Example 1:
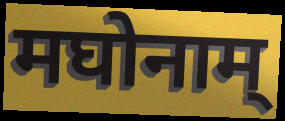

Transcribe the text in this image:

मघोनाम्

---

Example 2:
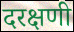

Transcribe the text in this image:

दरक्षणी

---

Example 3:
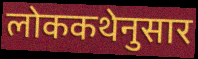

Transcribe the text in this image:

लोककथेनुसार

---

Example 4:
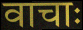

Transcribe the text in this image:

वाचाः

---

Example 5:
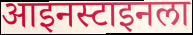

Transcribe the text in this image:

आइनस्टाइनला